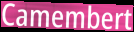
Camembert